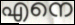
എനെ